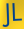
JL